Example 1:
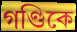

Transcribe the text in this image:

গণ্ডিকে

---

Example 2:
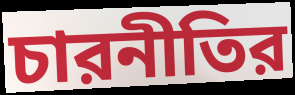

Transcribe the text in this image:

চারনীতির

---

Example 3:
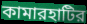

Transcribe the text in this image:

কামারহাটির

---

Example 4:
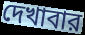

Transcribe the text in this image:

দেখাবার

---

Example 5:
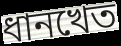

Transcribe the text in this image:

ধানখেত